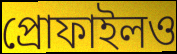
প্রোফাইলও